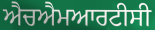
ਐਚਐਮਆਰਟੀਸੀ